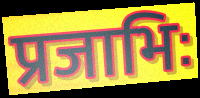
प्रजाभिः